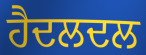
ਹੈਦਲਦਲ